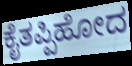
ಕೈತಪ್ಪಿಹೋದ